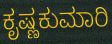
ಕೃಷ್ಣಕುಮಾರಿ